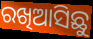
ରଖିଆସିଛୁ